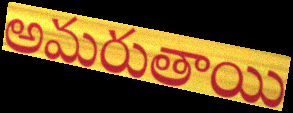
అమరుతాయి